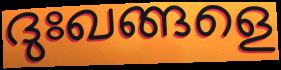
ദുഃഖങ്ങളെ